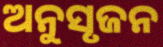
ଅନୁସୃଜନ